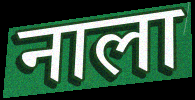
नाला